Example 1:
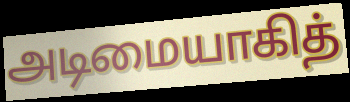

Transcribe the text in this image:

அடிமையாகித்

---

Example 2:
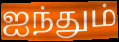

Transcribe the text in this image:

ஐந்தும்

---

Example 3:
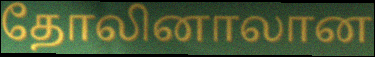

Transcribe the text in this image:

தோலினாலான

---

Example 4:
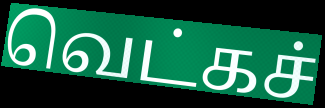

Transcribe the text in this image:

வெட்கச்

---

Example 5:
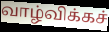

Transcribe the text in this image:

வாழ்விக்கச்